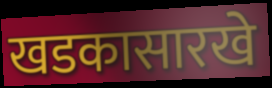
खडकासारखे